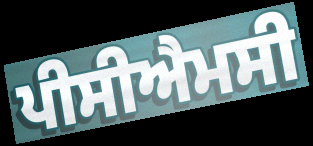
ਪੀਸੀਐਮਸੀ